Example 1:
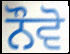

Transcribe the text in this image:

ਨੌਵੋ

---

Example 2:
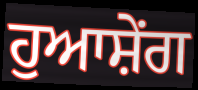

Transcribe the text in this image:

ਹੁਆਸ਼ੇਂਗ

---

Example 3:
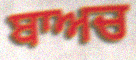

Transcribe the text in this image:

ਬਾਅਚ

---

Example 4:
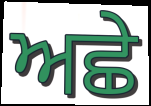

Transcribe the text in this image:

ਅਛੇ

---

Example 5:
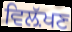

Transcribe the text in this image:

ਵਿਲ਼ੱਖਣ